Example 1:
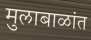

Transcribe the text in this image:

मुलाबाळांत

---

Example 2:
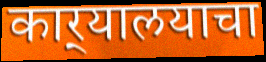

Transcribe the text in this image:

कार्यालयाचा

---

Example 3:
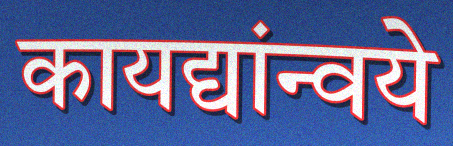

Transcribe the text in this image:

कायद्यांन्वये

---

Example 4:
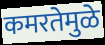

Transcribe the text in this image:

कमरतेमुळे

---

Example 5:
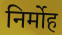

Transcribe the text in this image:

निर्मोह